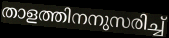
താളത്തിനനുസരിച്ച്